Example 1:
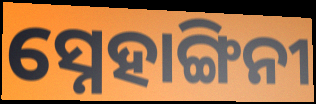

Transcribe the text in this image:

ସ୍ନେହାଙ୍ଗିନୀ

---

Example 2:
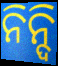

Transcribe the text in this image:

ନିନ୍ଦି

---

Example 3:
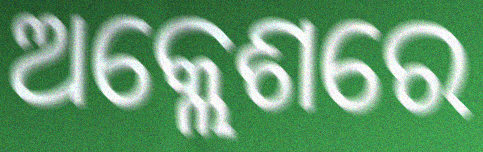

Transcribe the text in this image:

ଅକ୍ଲେଶରେ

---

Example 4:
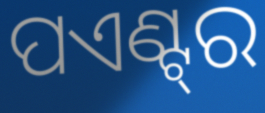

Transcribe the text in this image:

ପଏଣ୍ଟ୍‌ର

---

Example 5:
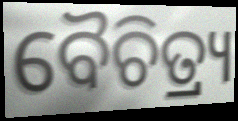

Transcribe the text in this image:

ବୈଚିତ୍ର୍ୟ